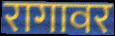
रागावर